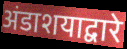
अंडाशयाद्वारे